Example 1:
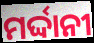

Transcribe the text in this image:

ମର୍ଦ୍ଦାନୀ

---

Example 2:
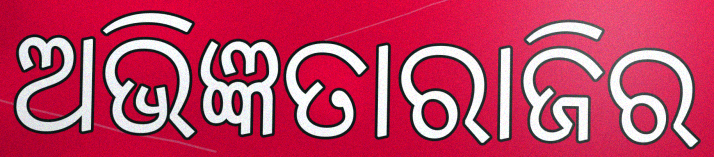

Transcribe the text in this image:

ଅଭିଜ୍ଞତାରାଜିର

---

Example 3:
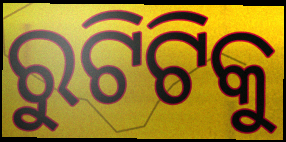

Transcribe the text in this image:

ରୁଟିଟିକୁ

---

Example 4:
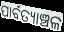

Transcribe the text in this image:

ପାର୍ବତ୍ୟାଞ୍ଚଳ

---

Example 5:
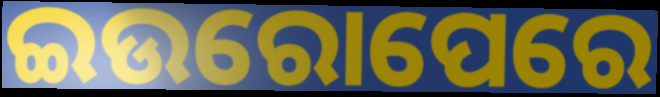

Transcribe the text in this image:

ଇଉରୋପେରେ